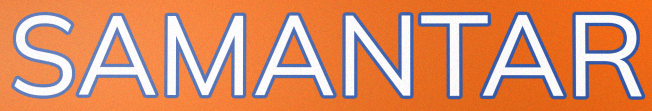
SAMANTAR